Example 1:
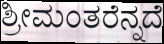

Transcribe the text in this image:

ಶ್ರೀಮಂತರೆನ್ನದೆ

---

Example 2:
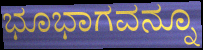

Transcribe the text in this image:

ಭೂಭಾಗವನ್ನೂ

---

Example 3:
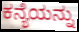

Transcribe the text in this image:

ಕನ್ಯೆಯನ್ನು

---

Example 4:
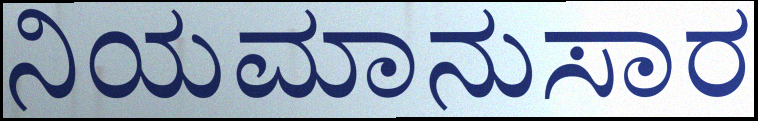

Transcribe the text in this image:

ನಿಯಮಾನುಸಾರ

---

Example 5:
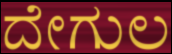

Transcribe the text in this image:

ದೇಗುಲ